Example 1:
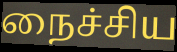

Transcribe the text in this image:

நைச்சிய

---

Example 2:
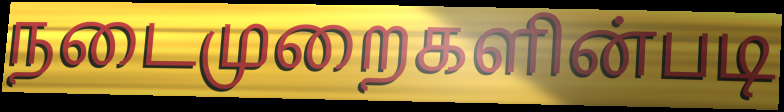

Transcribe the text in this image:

நடைமுறைகளின்படி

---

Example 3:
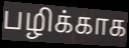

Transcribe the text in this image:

பழிக்காக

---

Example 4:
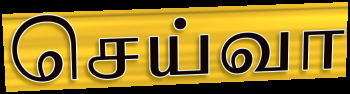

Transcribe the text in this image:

செய்வா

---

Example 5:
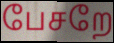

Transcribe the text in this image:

பேசறே